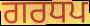
ਗਰਧਪ